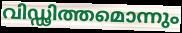
വിഡ്ഢിത്തമൊന്നും